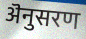
ऄनुसरण